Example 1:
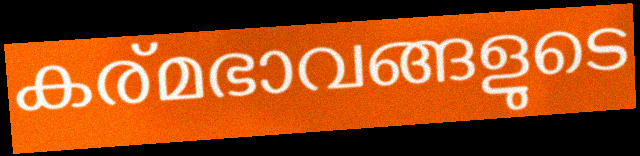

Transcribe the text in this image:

കര്മഭാവങ്ങളുടെ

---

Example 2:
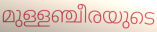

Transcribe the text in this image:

മുള്ളഞ്ചീരയുടെ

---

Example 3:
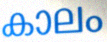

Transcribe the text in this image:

കാലം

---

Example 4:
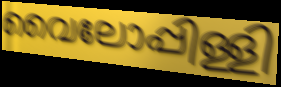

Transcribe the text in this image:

വൈലോപ്പിള്ളി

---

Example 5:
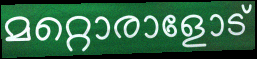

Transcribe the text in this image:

മറ്റൊരാളോട്